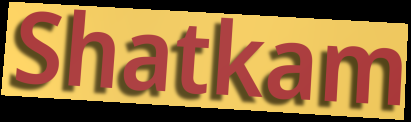
Shatkam